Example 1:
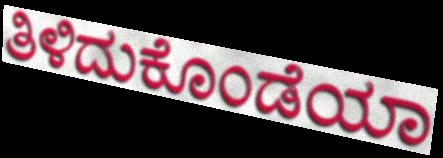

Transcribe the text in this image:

ತಿಳಿದುಕೊಂಡೆಯಾ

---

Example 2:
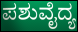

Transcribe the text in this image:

ಪಶುವೈದ್ಯ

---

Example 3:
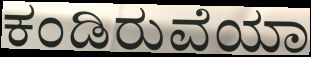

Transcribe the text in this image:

ಕಂಡಿರುವೆಯಾ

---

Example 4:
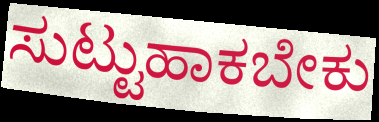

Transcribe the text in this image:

ಸುಟ್ಟುಹಾಕಬೇಕು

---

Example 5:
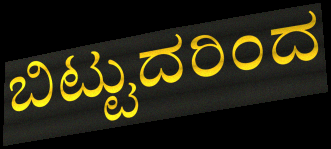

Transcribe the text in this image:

ಬಿಟ್ಟುದರಿಂದ